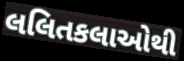
લલિતકલાઓથી